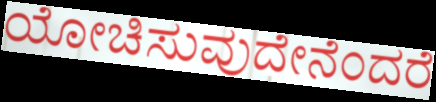
ಯೋಚಿಸುವುದೇನೆಂದರೆ